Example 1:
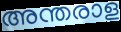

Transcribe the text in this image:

അന്തരാള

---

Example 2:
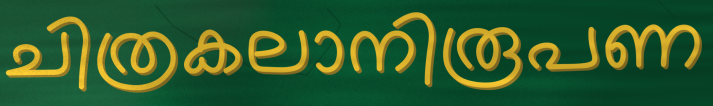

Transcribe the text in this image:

ചിത്രകലാനിരൂപണ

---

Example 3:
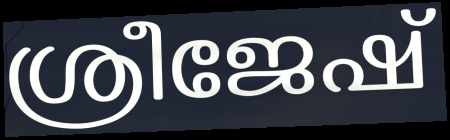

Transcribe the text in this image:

ശ്രീജേഷ്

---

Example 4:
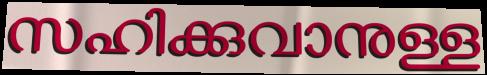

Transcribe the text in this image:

സഹിക്കുവാനുള്ള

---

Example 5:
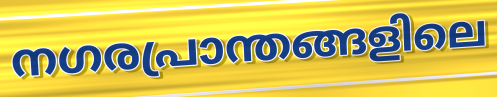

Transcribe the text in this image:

നഗരപ്രാന്തങ്ങളിലെ